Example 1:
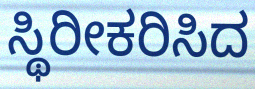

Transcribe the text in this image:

ಸ್ಥಿರೀಕರಿಸಿದ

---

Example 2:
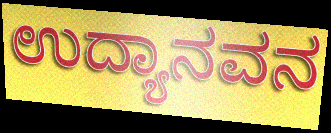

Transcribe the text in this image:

ಉದ್ಯಾನವನ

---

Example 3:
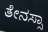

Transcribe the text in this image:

ತೇನಸ್ಸಾ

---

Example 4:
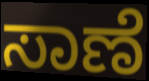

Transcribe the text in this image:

ಸಾಣೆ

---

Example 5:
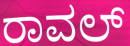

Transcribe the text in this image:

ರಾವಲ್